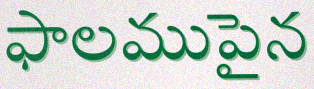
ఫాలముపైన